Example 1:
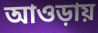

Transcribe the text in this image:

আওড়ায়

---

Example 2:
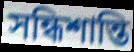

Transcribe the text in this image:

সন্ধিশান্তি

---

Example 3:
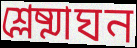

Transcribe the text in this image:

শ্লেষ্মাঘন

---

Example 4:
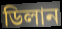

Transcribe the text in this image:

ডিলান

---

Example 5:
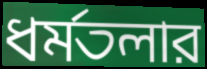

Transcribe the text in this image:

ধর্মতলার